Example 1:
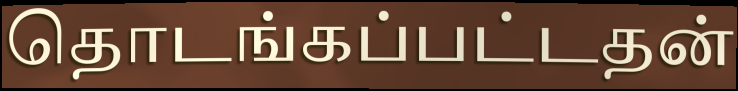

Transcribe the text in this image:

தொடங்கப்பட்டதன்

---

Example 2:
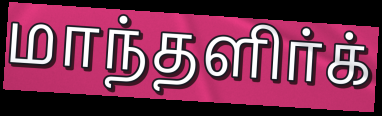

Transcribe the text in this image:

மாந்தளிர்க்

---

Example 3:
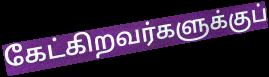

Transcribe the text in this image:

கேட்கிறவர்களுக்குப்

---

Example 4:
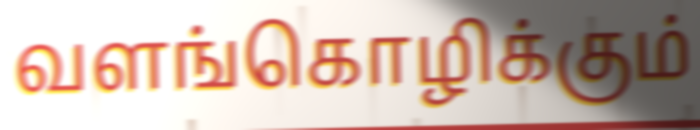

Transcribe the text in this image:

வளங்கொழிக்கும்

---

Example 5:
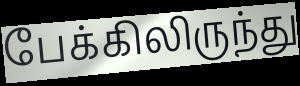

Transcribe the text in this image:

பேக்கிலிருந்து